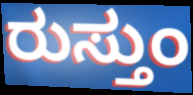
ರುಸ್ತುಂ